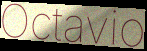
Octavio